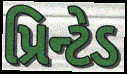
પ્રિન્ટેડ